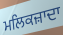
ਮਲਿਕਜ਼ਾਦਾ